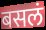
बसलं